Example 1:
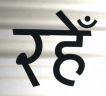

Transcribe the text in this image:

रहेँ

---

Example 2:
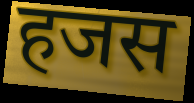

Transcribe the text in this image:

हजस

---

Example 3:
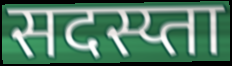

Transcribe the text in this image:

सदस्य्ता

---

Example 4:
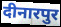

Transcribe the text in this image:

दीनारपुर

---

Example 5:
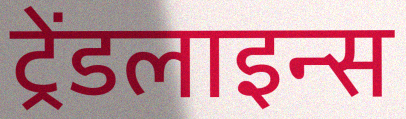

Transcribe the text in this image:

ट्रेंडलाइन्स